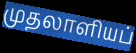
முதலாளியப்